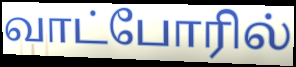
வாட்போரில்